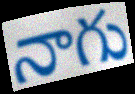
నాగు